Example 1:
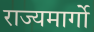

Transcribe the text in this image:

राज्यमार्गो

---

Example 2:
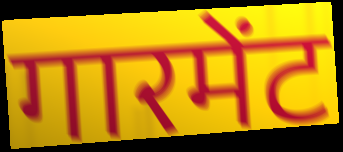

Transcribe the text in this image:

गारमेंट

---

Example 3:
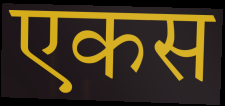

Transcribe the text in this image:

एकस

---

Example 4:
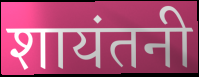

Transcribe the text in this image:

शायंतनी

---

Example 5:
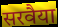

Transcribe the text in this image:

सरवैया